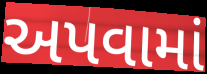
અપવામાં